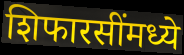
शिफारसींमध्ये